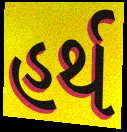
હર્થ